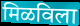
मिळविला